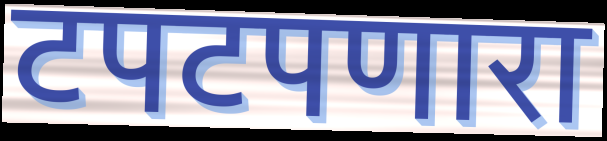
टपटपणारा